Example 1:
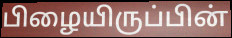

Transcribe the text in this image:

பிழையிருப்பின்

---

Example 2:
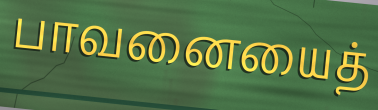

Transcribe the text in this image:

பாவனையைத்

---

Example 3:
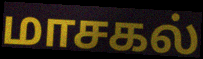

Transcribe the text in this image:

மாசகல்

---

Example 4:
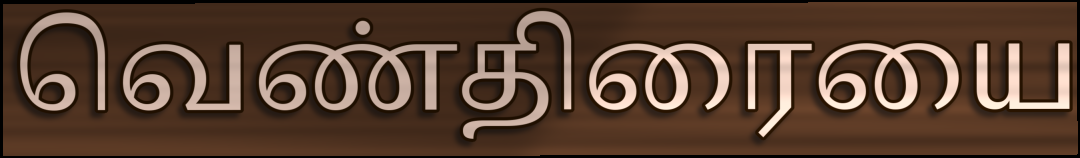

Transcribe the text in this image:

வெண்திரையை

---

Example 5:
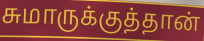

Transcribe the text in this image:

சுமாருக்குத்தான்